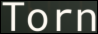
Torn